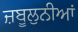
ਜ਼ਬੂਲੁਨੀਆਂ